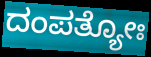
ದಂಪತ್ಯೋಃ